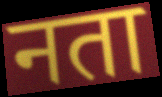
नता